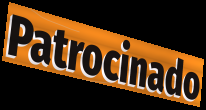
Patrocinado